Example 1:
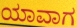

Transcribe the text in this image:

ಯಾವಾಗ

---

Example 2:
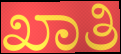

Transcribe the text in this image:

ಖಾತಿ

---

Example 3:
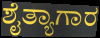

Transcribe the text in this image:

ಶೈತ್ಯಾಗಾರ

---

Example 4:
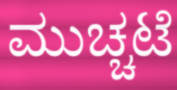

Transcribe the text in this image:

ಮುಚ್ಚಟೆ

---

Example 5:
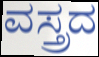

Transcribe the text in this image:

ವಸ್ತ್ರದ